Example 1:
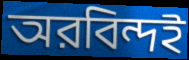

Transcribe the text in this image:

অরবিন্দই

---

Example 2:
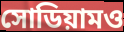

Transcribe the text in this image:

সোডিয়ামও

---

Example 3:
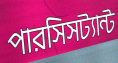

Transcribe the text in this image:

পারসিসট্যান্ট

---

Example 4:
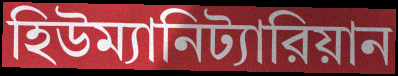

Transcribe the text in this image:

হিউম্যানিট্যারিয়ান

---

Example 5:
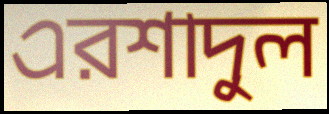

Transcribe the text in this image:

এরশাদুল